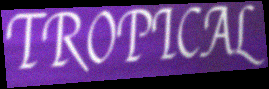
TROPICAL